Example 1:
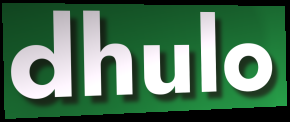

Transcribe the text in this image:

dhulo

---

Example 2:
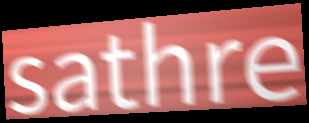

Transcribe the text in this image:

sathre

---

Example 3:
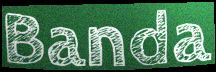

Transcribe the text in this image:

Banda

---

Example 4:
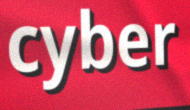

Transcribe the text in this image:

cyber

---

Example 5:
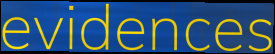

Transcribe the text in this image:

evidences